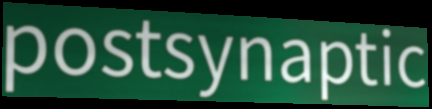
postsynaptic